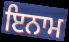
ਇਨਾਮ